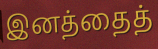
இனத்தைத்